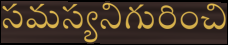
సమస్యనిగురించి